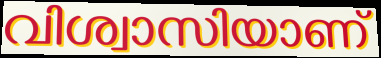
വിശ്വാസിയാണ്